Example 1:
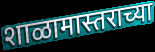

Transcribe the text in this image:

शाळामास्तराच्या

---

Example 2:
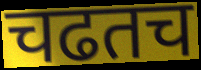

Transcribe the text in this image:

चढतच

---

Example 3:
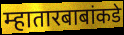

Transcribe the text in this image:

म्हातारबाबांकडे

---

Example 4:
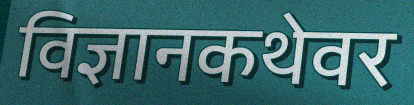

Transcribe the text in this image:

विज्ञानकथेवर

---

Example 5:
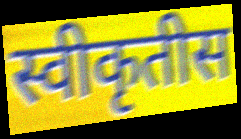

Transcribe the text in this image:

स्वीकृतीस